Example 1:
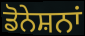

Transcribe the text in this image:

ਡੋਨੇਸ਼ਨਾਂ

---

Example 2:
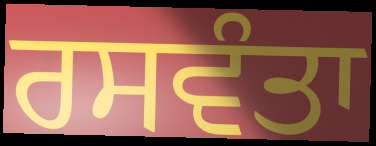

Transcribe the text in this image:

ਰਸਵੰਤਾ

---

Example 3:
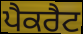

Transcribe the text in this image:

ਪੈਕਰੈਟ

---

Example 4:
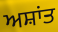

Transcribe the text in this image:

ਅਸ਼ਾਂਤ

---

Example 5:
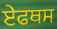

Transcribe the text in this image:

ਏਫਥਸ